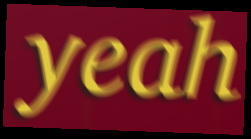
yeah